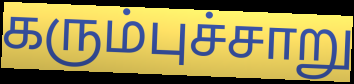
கரும்புச்சாறு